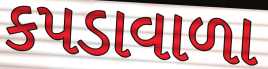
કપડાવાળા